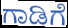
ಗಾಡಿಗೆ